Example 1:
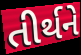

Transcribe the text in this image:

તીર્થને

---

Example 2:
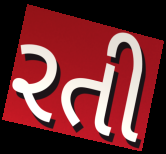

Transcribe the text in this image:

રતી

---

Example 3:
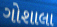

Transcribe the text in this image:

ગોશાલા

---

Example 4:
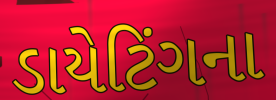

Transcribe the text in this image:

ડાયેટિંગના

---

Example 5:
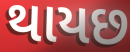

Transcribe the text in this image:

થાયછ